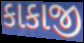
કાકાજી